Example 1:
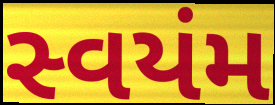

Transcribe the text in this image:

સ્વયંમ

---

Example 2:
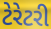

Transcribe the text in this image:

ટેરેટરી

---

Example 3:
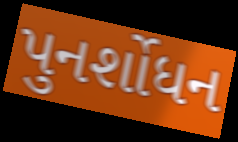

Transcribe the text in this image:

પુનર્શોધન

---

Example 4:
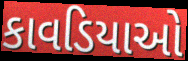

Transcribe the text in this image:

કાવડિયાઓ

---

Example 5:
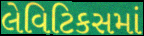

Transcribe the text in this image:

લેવિટિકસમાં